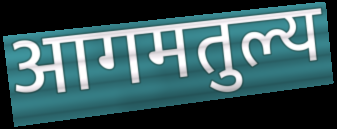
आगमतुल्य